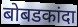
बोबडकांदा